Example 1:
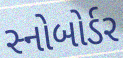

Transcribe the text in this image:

સ્નોબોર્ડર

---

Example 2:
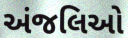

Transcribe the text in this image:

અંજલિઓ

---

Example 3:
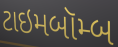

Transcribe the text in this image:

ટાઇમબૉમ્બ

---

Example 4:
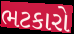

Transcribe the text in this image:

ભટકારો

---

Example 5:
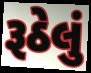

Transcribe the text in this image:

રૂઠેલું